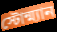
স্টোন্ম্যান